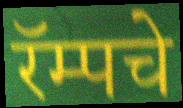
रॅम्पचे